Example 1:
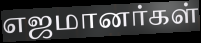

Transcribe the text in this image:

எஜமானர்கள்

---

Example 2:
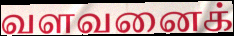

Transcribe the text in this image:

வளவனைக்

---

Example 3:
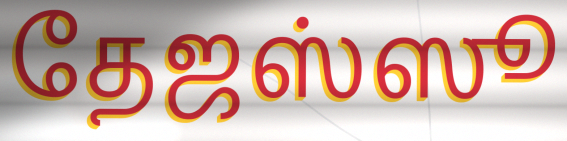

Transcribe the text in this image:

தேஜஸ்ஸூ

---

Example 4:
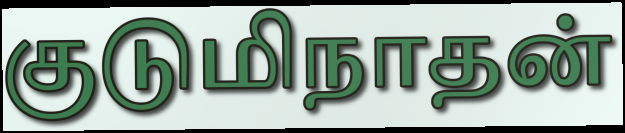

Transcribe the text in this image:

குடுமிநாதன்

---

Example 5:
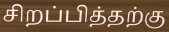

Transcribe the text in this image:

சிறப்பித்தற்கு